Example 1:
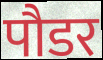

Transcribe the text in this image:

पौडर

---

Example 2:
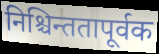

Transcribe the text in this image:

निश्चिन्ततापूर्वक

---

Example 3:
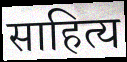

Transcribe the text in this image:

साहित्‍य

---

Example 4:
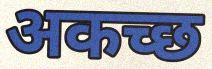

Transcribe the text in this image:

अकच्छ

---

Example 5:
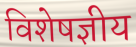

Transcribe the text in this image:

विशेषज्ञीय